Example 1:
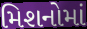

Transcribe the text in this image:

મિશનોમાં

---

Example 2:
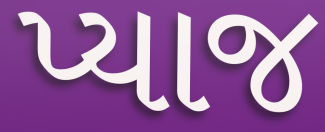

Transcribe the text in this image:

પ્યાજ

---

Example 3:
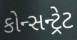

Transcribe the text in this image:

કોન્સન્ટ્રેટ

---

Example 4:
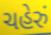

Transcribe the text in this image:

ચહેરું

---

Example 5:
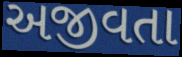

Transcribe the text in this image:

અજીવતા